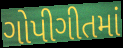
ગોપીગીતમાં